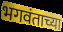
भगवंताच्या